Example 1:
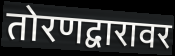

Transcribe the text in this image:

तोरणद्वारावर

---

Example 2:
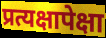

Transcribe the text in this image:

प्रत्यक्षापेक्षा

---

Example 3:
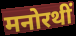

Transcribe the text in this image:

मनोरथीं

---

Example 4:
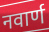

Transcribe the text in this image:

नवार्ण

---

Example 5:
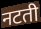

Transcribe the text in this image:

नटती